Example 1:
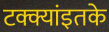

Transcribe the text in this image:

टक्क्यांइतके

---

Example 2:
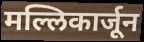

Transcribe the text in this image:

मल्लिकार्जून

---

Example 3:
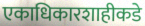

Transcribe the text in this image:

एकाधिकारशाहीकडे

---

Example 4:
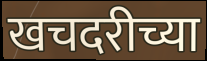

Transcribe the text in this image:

खचदरीच्या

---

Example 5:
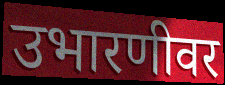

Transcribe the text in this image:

उभारणीवर